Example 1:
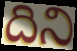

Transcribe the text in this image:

దిని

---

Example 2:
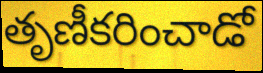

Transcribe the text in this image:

తృణీకరించాడో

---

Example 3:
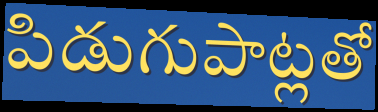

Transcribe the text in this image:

పిడుగుపాట్లతో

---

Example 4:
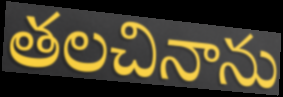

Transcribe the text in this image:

తలచినాను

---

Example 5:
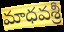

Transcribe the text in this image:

మాధవశ్రీ